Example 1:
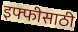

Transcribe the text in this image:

इफ्फीसाठी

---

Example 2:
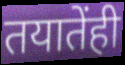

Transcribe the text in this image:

तयातेंही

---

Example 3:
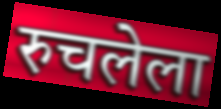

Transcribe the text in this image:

रुचलेला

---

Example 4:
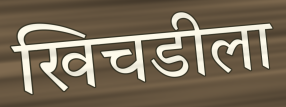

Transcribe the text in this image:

खिचडीला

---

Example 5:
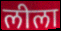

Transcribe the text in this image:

लीला